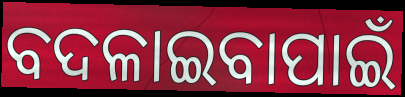
ବଦଳାଇବାପାଇଁ